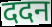
ददन